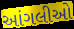
આંગલીઓ